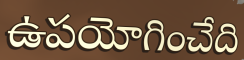
ఉపయోగించేది